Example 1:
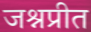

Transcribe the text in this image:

जश्नप्रीत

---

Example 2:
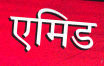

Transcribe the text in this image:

एमिड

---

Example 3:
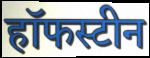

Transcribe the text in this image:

हॉफस्टीन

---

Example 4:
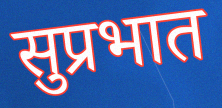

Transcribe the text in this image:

सुप्रभात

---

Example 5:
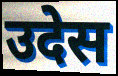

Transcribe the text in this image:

उदेस